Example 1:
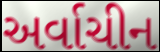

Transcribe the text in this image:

અર્વાચીન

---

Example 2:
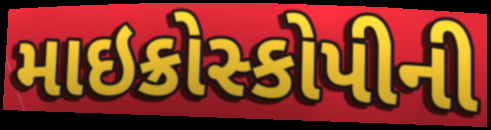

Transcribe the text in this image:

માઇક્રોસ્કોપીની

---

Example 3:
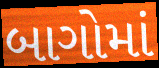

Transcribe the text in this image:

બાગોમાં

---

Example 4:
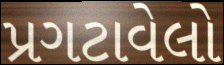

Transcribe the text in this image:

પ્રગટાવેલો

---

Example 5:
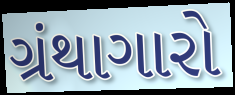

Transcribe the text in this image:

ગ્રંથાગારો